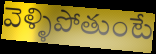
వెళ్ళిపోతుంటే